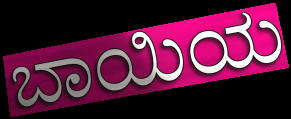
ಬಾಯಿಯ